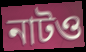
নাটও